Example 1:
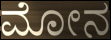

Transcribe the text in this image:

ಮೋನ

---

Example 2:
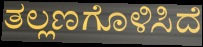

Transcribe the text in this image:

ತಲ್ಲಣಗೊಳಿಸಿದೆ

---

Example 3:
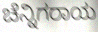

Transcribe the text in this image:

ಚೆನ್ನಿಗರಾಯ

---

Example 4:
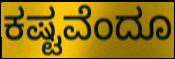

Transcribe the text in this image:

ಕಷ್ಟವೆಂದೂ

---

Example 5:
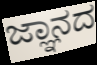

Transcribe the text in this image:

ಜ್ಞಾನದ